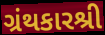
ગ્રંથકારશ્રી